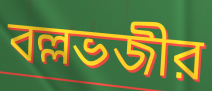
বল্লভজীর